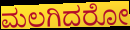
ಮಲಗಿದರೋ